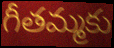
గీతమ్మకు